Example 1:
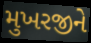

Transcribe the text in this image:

મુખરજીને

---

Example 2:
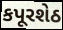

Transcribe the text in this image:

કપૂરશેઠ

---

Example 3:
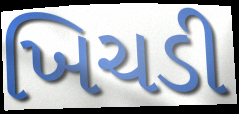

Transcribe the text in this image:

ખિચડી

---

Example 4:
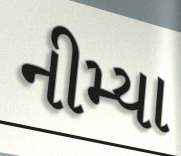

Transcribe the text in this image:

નીમ્યા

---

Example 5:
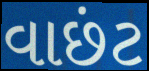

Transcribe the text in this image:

વાછંટ